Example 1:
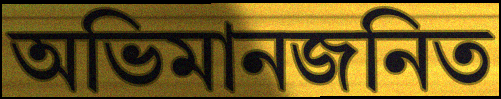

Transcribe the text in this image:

অভিমানজনিত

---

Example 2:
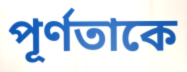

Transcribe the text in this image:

পূর্ণতাকে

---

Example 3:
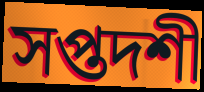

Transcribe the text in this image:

সপ্তদশী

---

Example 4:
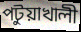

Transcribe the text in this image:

পটুয়াখালী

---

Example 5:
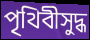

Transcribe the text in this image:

পৃথিবীসুদ্ধ